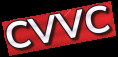
CVVC